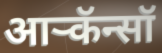
आर्‍कॅन्सॉ